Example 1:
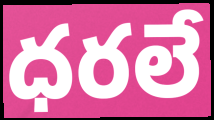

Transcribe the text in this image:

ధరలే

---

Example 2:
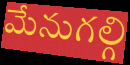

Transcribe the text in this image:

మేనుగల్గి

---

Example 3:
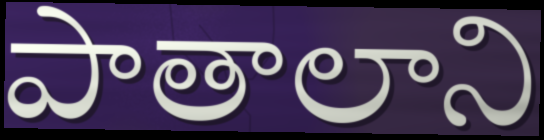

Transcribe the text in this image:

పాతాలాని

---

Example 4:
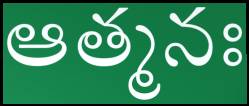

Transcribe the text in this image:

ఆత్మనః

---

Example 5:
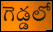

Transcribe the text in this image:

గెడ్డలో